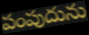
పంపుదును